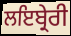
ਲਇਬ੍ਰੇਰੀ